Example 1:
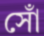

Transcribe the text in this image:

সোঁ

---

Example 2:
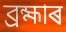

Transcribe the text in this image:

ব্ৰহ্মাৰ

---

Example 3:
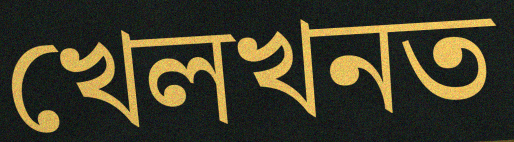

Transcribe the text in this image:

খেলখনত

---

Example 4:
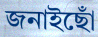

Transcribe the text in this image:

জনাইছোঁ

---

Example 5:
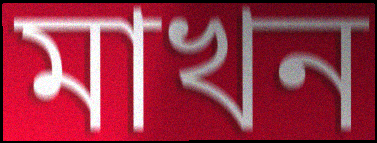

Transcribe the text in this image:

মাখন